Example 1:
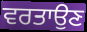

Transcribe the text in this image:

ਵਰਤਾਉਣ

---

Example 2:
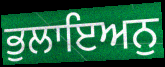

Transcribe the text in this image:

ਭੁਲਾਇਅਨੁ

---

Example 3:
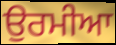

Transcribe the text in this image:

ਉਰਮੀਆ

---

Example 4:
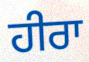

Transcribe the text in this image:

ਹੀਰਾ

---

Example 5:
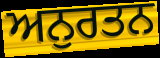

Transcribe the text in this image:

ਅਨੁਰਤਨ